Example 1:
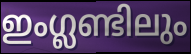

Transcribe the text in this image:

ഇംഗ്ലണ്ടിലും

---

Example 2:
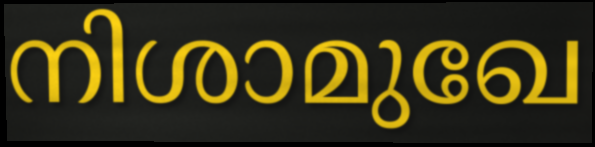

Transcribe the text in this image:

നിശാമുഖേ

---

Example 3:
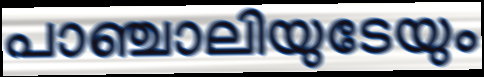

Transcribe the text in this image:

പാഞ്ചാലിയുടേയും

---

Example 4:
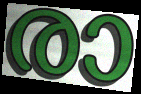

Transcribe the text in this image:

രാ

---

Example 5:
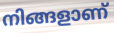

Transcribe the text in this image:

നിങ്ങളാണ്